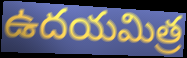
ఉదయమిత్ర